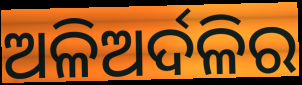
ଅଳିଅର୍ଦଳିର